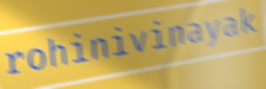
rohinivinayak